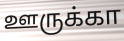
ஊருக்கா